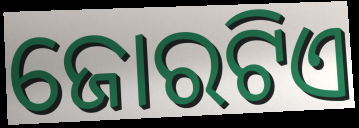
ଜୋରଟିଏ